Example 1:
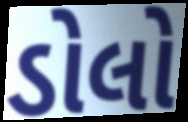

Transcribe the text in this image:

ડોલો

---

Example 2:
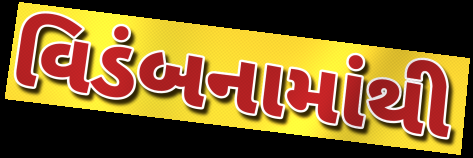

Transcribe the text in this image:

વિડંબનામાંથી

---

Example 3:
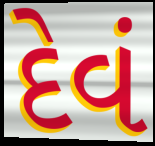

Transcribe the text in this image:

દેવં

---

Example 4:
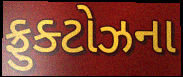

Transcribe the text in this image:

ફ્રુક્ટોઝના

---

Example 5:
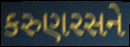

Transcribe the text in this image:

કરુણરસને